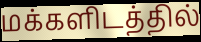
மக்களிடத்தில்